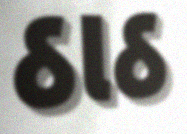
ઠાઠ